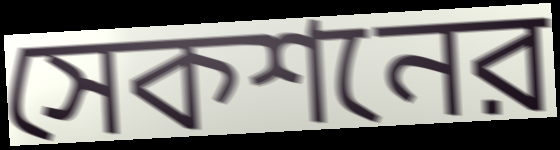
সেকশনের